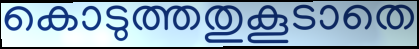
കൊടുത്തതുകൂടാതെ